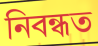
নিবন্ধত